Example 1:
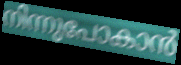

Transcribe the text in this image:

നിന്നുപോകാൻ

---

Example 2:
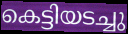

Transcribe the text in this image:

കെട്ടിയടച്ചു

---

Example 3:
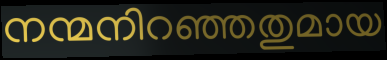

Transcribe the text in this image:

നന്മനിറഞ്ഞതുമായ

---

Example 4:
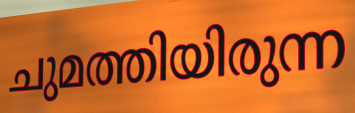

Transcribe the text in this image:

ചുമത്തിയിരുന്ന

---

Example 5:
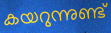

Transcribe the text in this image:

കയറുന്നുണ്ട്